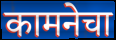
कामनेचा